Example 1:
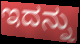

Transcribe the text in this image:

ಇದನ್ನು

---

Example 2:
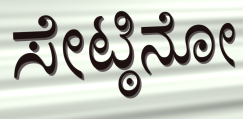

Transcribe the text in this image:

ಸೇಟ್ಠಿನೋ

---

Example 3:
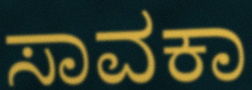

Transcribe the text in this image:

ಸಾವಕಾ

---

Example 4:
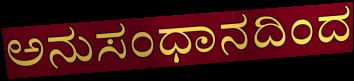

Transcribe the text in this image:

ಅನುಸಂಧಾನದಿಂದ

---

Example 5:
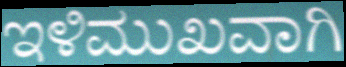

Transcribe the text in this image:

ಇಳಿಮುಖವಾಗಿ